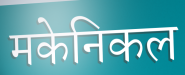
मकेनिकल